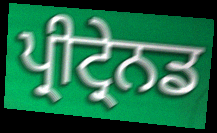
ਪ੍ਰੀਟ੍ਰੇਨਡ